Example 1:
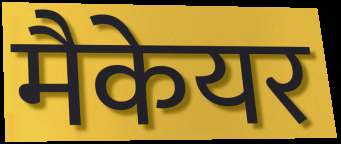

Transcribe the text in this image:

मैकेयर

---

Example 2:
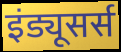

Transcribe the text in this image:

इंड्यूसर्स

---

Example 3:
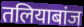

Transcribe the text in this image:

तलियाबांज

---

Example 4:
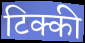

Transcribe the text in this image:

टिक्‍की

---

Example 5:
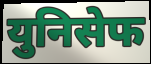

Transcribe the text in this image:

युनिसेफ